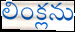
లింక్లను